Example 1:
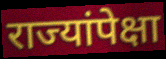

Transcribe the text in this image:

राज्यांपेक्षा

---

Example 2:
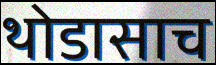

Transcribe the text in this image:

थोडासाच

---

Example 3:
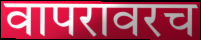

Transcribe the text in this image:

वापरावरच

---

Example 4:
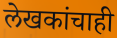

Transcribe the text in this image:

लेखकांचाही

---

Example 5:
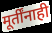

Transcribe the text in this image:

मूर्तींनाही